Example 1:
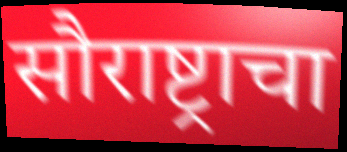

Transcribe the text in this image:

सौराष्ट्राचा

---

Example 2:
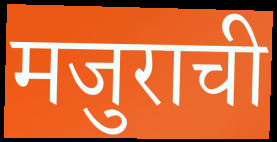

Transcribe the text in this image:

मजुराची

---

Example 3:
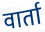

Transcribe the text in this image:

वार्ता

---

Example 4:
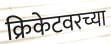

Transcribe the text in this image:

क्रिकेटवरच्या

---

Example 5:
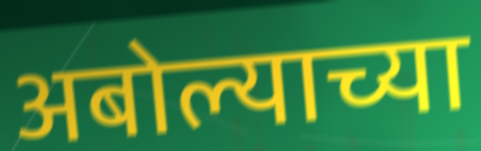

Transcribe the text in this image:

अबोल्याच्या